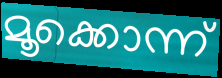
മൂക്കൊന്ന്